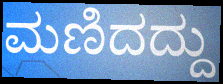
ಮಣಿದದ್ದು